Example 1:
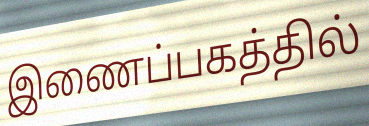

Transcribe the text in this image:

இணைப்பகத்தில்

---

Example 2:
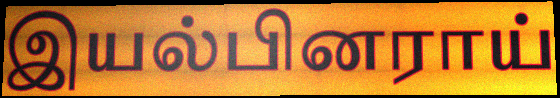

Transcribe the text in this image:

இயல்பினராய்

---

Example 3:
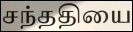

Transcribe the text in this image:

சந்ததியை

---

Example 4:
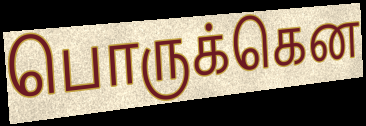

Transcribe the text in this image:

பொருக்கென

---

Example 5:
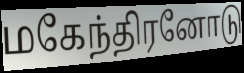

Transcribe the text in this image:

மகேந்திரனோடு